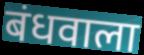
बंधवाला